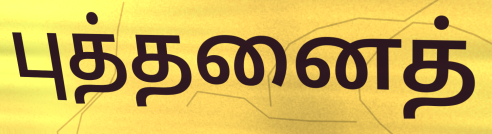
புத்தனைத்